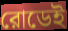
রোডেই